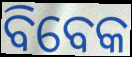
ବିବେକ